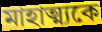
মাহাত্ম্যকে